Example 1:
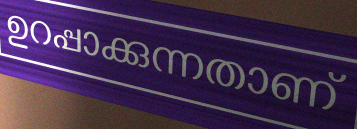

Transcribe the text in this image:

ഉറപ്പാക്കുന്നതാണ്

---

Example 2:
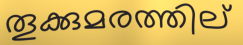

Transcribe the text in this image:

തൂക്കുമരത്തില്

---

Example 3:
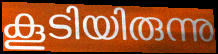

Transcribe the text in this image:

കൂടിയിരുന്നു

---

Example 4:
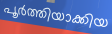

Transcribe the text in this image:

പൂർത്തിയാക്കിയ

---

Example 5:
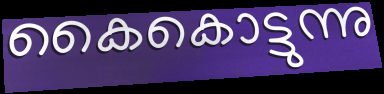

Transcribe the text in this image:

കൈകൊട്ടുന്നു